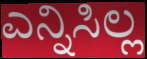
ಎನ್ನಿಸಿಲ್ಲ